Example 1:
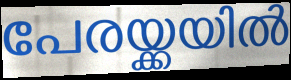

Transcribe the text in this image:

പേരയ്ക്കയിൽ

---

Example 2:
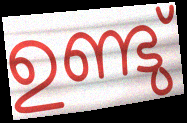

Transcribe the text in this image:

ഉണ്ടു്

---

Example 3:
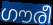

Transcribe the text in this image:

ഗൗരീ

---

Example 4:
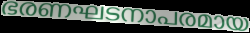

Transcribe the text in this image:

ഭരണഘടനാപരമായ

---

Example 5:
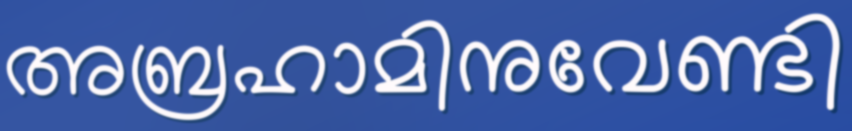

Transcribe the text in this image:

അബ്രഹാമിനുവേണ്ടി